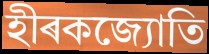
হীৰকজ্যোতি